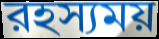
রহস্যময়